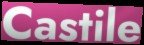
Castile